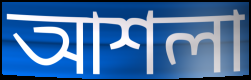
আশলা